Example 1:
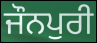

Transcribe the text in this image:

ਜੌਨਪੁਰੀ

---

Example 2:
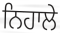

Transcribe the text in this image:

ਨਿਹਾਲੇ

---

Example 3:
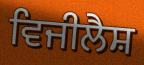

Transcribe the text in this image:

ਵਿਜੀਲੈਸ਼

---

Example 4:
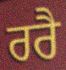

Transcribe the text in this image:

ਰਰੈ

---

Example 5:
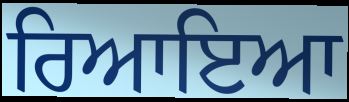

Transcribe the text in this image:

ਰਿਆਇਆ